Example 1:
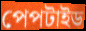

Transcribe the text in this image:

পেপটাইড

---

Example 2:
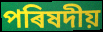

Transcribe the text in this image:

পৰিষদীয়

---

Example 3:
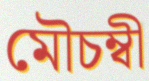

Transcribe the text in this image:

মৌচম্বী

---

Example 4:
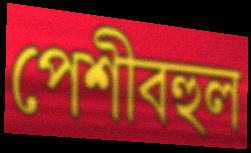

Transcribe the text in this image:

পেশীবহুল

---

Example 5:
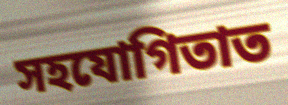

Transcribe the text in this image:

সহযোগিতাত